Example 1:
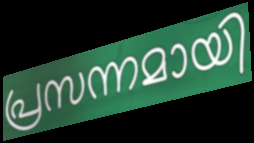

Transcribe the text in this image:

പ്രസന്നമായി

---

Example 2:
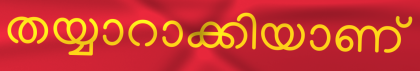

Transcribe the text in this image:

തയ്യാറാക്കിയാണ്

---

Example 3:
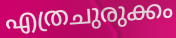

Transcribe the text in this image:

എത്രചുരുക്കം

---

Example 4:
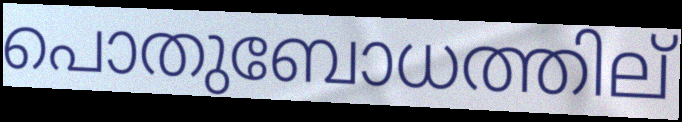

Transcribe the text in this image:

പൊതുബോധത്തില്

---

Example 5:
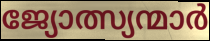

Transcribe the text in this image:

ജ്യോത്സ്യന്മാർ